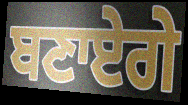
ਬਣਾਏਗੇ